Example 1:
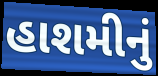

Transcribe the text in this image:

હાશમીનું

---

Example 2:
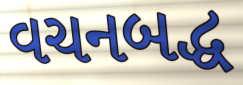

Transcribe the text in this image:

વચનબદ્ધ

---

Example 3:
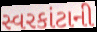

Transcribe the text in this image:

સ્વરકાંટાની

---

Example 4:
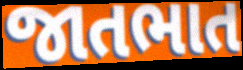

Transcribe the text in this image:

જાતભાત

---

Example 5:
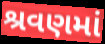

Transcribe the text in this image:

શ્રવણમાં